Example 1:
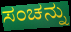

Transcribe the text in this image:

ಸಂಚನ್ನು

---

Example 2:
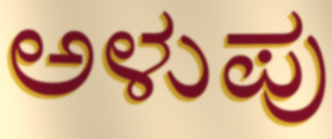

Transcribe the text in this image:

ಅಳುಪು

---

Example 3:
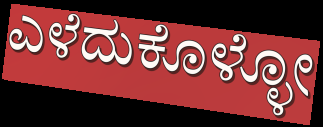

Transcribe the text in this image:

ಎಳೆದುಕೊಳ್ಳೋ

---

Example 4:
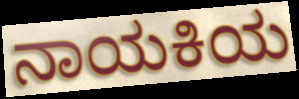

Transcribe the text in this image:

ನಾಯಕಿಯ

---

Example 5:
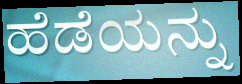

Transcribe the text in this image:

ಹೆಡೆಯನ್ನು